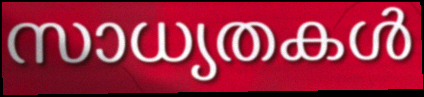
സാധ്യതകൾ